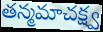
తన్మమాచక్ష్వ